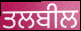
ਤਲਬੀਲ